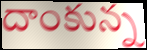
దాంకున్న